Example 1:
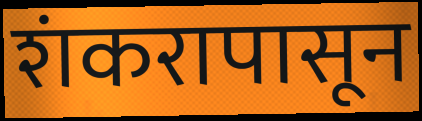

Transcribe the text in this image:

शंकरापासून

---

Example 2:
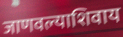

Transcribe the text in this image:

जाणवल्याशिवाय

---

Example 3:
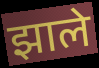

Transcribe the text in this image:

झाले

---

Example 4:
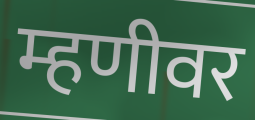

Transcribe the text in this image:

म्हणीवर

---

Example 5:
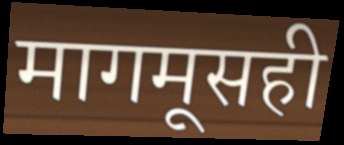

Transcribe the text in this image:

मागमूसही